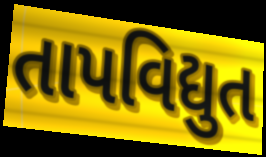
તાપવિદ્યુત